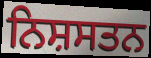
ਨਿਸ਼ਸਤਨ